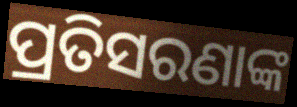
ପ୍ରତିସରଣାଙ୍କ